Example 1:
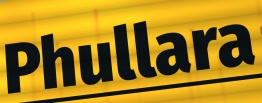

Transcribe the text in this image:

Phullara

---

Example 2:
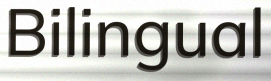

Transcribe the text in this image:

Bilingual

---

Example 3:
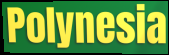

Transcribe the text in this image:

Polynesia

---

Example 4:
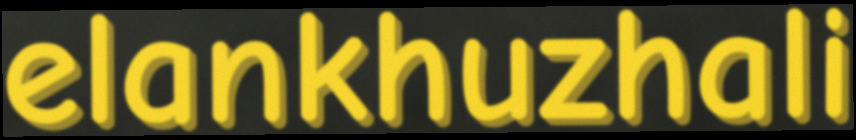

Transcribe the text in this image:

elankhuzhali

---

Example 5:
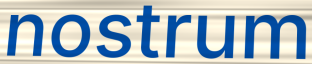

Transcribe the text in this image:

nostrum